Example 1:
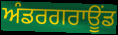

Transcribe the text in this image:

ਅੰਡਰਗਰਾਊਂਡ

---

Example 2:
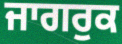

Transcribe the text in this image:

ਜਾਗਰੁਕ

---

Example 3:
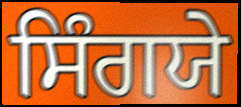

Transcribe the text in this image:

ਸਿੰਗਯੇ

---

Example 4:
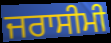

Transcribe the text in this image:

ਜਰਾਸੀਮੀ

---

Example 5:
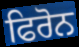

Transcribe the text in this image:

ਫਿਰੋਨ